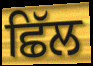
ਛਿੱਲ